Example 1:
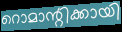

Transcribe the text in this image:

റൊമാന്റിക്കായി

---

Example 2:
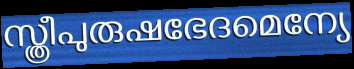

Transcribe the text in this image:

സ്ത്രീപുരുഷഭേദമെന്യേ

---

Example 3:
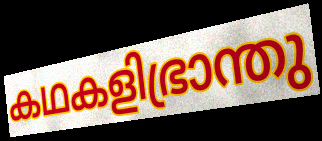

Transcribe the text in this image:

കഥകളിഭ്രാന്തു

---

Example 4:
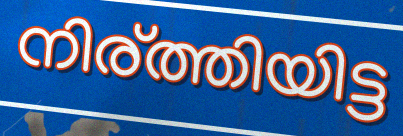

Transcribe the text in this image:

നിര്ത്തിയിട്ട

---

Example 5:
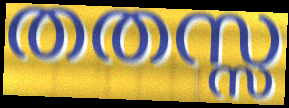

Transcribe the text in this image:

തതസ്സ